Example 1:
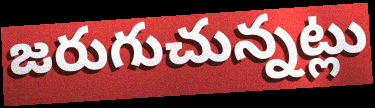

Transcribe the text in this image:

జరుగుచున్నట్లు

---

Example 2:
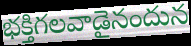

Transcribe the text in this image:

భక్తిగలవాడైనందున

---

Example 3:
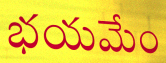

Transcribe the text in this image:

భయమేం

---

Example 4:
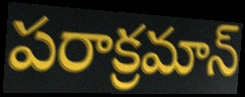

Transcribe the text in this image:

పరాక్రమాన్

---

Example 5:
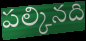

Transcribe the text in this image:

పల్కినది